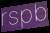
rspb